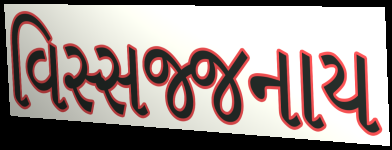
વિસ્સજ્જનાય